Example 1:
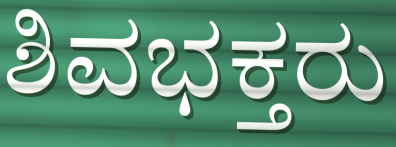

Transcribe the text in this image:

ಶಿವಭಕ್ತರು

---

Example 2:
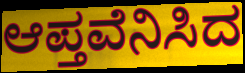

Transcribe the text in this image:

ಆಪ್ತವೆನಿಸಿದ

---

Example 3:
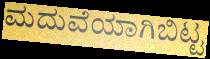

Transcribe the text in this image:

ಮದುವೆಯಾಗಿಬಿಟ್ಟ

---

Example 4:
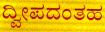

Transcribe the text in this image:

ದ್ವೀಪದಂತಹ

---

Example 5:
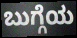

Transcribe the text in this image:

ಬುಗ್ಗೆಯ